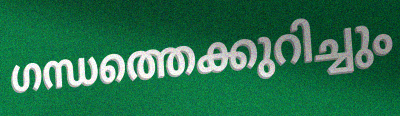
ഗന്ധത്തെക്കുറിച്ചും